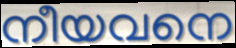
നീയവനെ